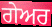
ਗੇਅਰ